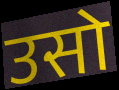
उसो